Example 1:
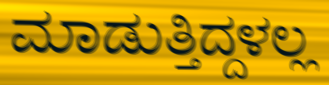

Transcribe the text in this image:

ಮಾಡುತ್ತಿದ್ದಳಲ್ಲ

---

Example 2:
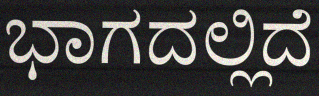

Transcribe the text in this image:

ಭಾಗದಲ್ಲಿದೆ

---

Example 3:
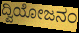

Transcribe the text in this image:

ದ್ವಿಯೋಜನಂ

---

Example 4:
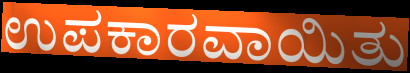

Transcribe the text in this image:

ಉಪಕಾರವಾಯಿತು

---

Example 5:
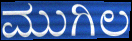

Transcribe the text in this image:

ಮುಗಿಲ